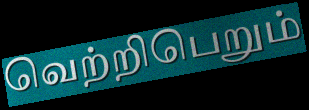
வெற்றிபெறும்